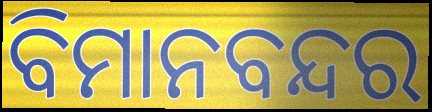
ବିମାନବନ୍ଦର